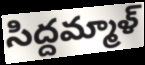
సిద్దమ్మాళ్